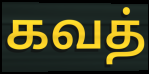
கவத்